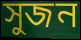
সুজন